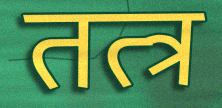
तत्त्र